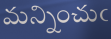
మన్నించుఁ